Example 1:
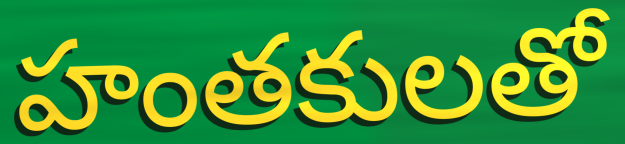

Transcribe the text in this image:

హంతకులతో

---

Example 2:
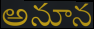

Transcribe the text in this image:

అనూన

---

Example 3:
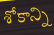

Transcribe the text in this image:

శోకాన్ని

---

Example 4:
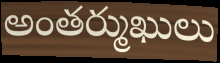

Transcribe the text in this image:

అంతర్ముఖులు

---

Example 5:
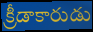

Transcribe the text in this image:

క్రీడాకారుడు